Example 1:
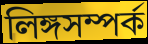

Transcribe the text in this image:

লিঙ্গসম্পর্ক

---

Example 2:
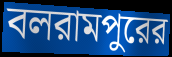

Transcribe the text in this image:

বলরামপুরের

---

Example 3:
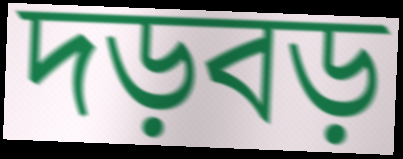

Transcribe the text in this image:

দড়বড়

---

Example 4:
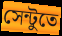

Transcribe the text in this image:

সেন্টুতে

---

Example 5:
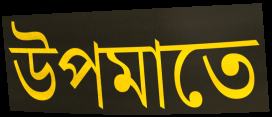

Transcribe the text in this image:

উপমাতে